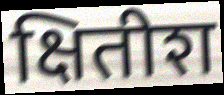
क्षितीश